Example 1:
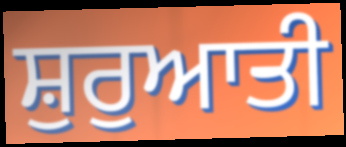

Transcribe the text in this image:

ਸ਼ੁਰੁਆਤੀ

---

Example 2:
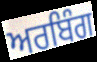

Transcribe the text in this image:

ਅਰਬਿੰਗ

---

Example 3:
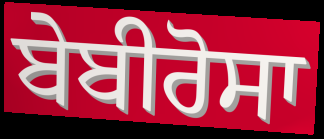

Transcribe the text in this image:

ਬੇਬੀਰੋਸਾ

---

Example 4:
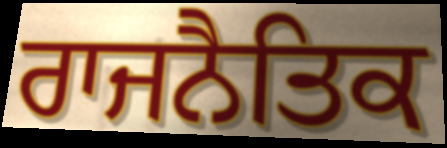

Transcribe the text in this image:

ਰਾਜਨੈਤਿਕ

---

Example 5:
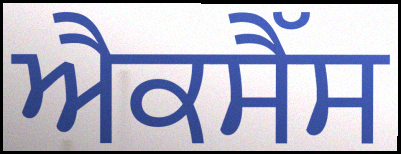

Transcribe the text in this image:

ਐਕਸੈੱਸ